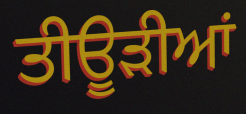
ਤੀਊੜੀਆਂ